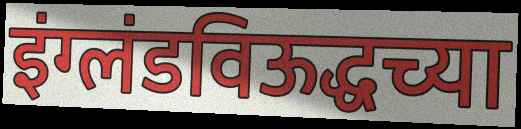
इंग्लंडविऊद्धच्या